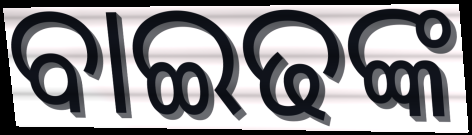
ବାଇଢଙ୍କ